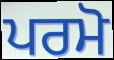
ਪਰਮੋ